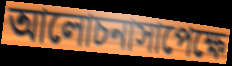
আলোচনাসাপেক্ষে